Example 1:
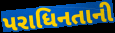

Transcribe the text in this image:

પરાધિનતાની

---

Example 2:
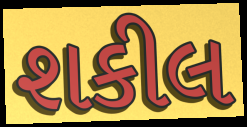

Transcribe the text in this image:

શકીલ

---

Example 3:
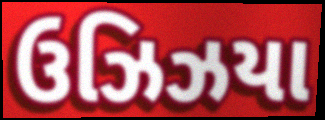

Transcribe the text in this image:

ઉઝિઝયા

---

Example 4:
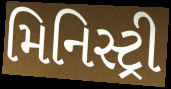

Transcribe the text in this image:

મિનિસ્ટ્રી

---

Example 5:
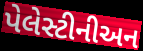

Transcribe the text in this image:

પેલેસ્ટીનીઅન